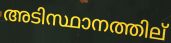
അടിസ്ഥാനത്തില്